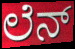
ಲೆನ್